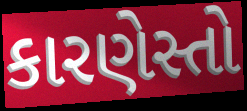
કારણેસ્તો